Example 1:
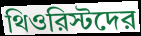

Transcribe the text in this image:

থিওরিস্টদের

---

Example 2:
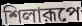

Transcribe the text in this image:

শিলারূপে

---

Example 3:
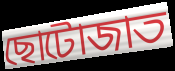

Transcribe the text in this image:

ছোটোজাত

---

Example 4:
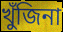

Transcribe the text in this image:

খুঁজিনা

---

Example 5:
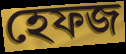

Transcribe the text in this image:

হেফজ